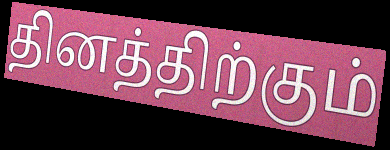
தினத்திற்கும்